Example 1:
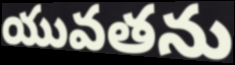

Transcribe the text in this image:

యువతను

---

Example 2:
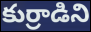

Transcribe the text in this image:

కుర్రాడిని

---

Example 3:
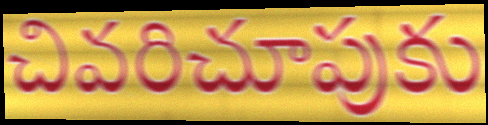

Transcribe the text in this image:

చివరిచూపుకు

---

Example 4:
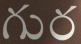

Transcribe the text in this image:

గుర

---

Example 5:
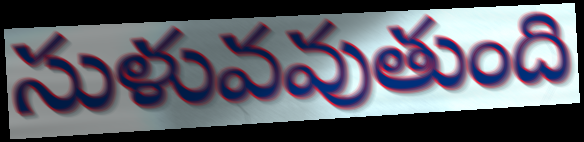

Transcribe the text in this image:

సుళువవుతుంది